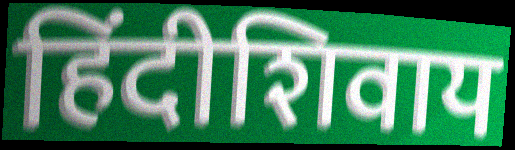
हिंदीशिवाय